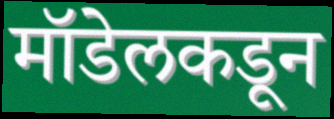
मॉडेलकडून